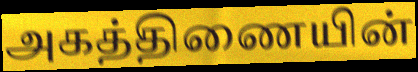
அகத்திணையின்